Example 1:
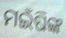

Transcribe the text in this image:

ମଇଁଷିଙ୍କ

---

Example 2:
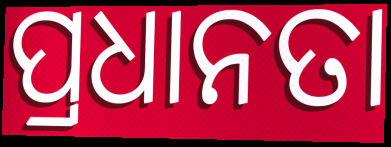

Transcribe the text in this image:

ପ୍ରଧାନତା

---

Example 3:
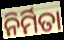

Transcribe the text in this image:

ନିର୍ମିତା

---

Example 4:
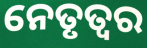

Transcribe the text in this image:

ନେତୃତ୍ୱର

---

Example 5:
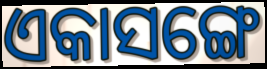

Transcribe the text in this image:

ଏକାସଙ୍ଗେ